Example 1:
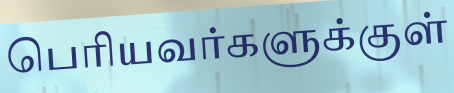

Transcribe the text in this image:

பெரியவர்களுக்குள்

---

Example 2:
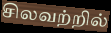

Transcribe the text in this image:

சிலவற்றில்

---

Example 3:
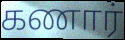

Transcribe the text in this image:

கணார்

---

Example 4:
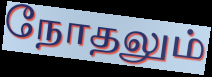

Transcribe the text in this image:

நோதலும்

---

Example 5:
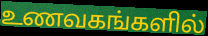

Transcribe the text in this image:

உணவகங்களில்